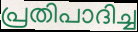
പ്രതിപാദിച്ച